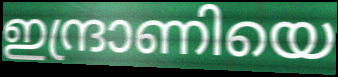
ഇന്ദ്രാണിയെ